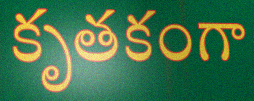
కృతకంగా